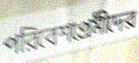
পরিবেশপ্রেমীদের